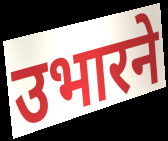
उभारने